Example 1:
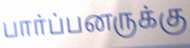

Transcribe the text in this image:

பார்ப்பனருக்கு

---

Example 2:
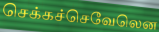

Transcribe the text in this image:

செக்கச்செவேலென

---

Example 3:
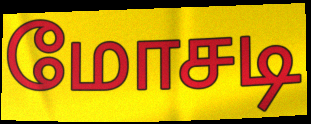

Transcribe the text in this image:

மோசடி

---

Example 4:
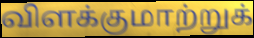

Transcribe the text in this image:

விளக்குமாற்றுக்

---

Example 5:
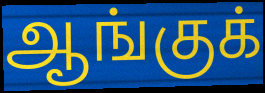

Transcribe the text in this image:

ஆங்குக்